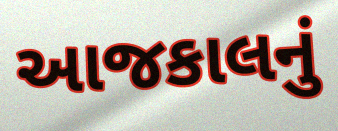
આજકાલનું